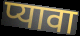
प्यावा